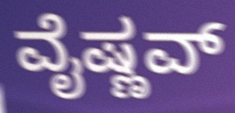
ವೈಷ್ಣವ್